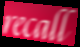
recall